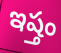
ఇష్తం